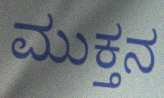
ಮುಕ್ತನ